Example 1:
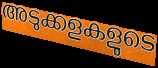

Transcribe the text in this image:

അടുക്കളകളുടെ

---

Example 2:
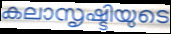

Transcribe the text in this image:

കലാസൃഷ്ടിയുടെ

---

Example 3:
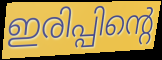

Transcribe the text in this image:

ഇരിപ്പിന്റെ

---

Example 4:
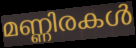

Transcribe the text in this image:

മണ്ണിരകൾ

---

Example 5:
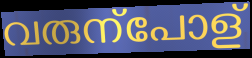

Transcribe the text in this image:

വരുന്പോള്